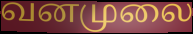
வனமுலை